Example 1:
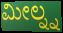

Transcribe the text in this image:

ಮೀಲ್ನ್ನ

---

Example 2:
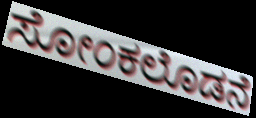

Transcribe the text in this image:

ಸೋಂಕಲೊಡನೆ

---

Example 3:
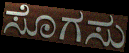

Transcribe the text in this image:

ಸೊಗಸು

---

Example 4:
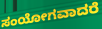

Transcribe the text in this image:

ಸಂಯೋಗವಾದರೆ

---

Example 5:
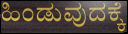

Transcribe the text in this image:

ಹಿಂಡುವುದಕ್ಕೆ